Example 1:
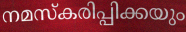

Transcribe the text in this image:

നമസ്കരിപ്പിക്കയും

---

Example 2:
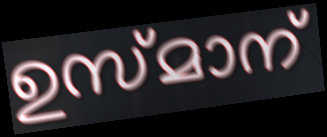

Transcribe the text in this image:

ഉസ്മാന്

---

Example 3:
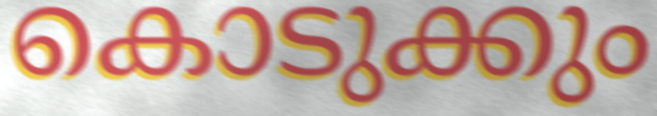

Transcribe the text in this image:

കൊടുക്കും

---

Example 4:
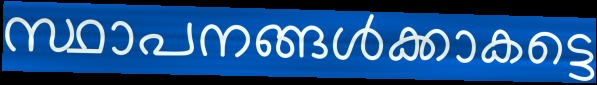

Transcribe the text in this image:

സ്ഥാപനങ്ങൾക്കാകട്ടെ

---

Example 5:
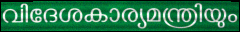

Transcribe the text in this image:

വിദേശകാര്യമന്ത്രിയും